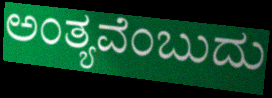
ಅಂತ್ಯವೆಂಬುದು